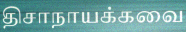
திசாநாயக்கவை